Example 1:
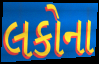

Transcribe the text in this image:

લકોના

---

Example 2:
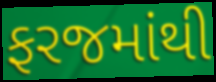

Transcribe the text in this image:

ફરજમાંથી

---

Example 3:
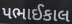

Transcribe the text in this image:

પભાઈકાલ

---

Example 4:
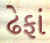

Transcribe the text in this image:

ઢેફાં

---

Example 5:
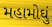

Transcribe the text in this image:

મહામોઘું